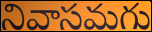
నివాసమగు